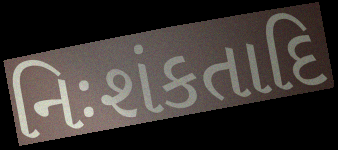
નિઃશંકતાદિ